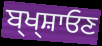
ਬ੍ਖ੍ਸ਼ਾਓਣ